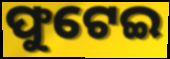
ଫୁଟେଇ